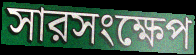
সারসংক্ষেপ